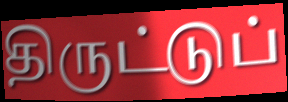
திருட்டுப்